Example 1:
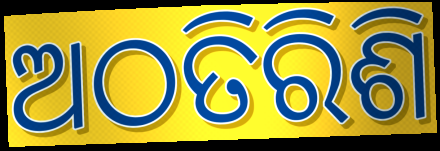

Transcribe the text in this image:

ଅଠତିରିଶି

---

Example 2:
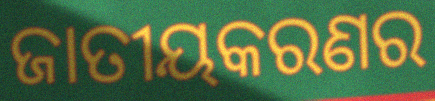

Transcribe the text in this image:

ଜାତୀୟକରଣର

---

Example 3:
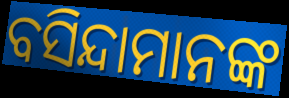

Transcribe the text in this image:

ବସିନ୍ଦାମାନଙ୍କ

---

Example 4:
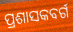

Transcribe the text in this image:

ପ୍ରଶାସକବର୍ଗ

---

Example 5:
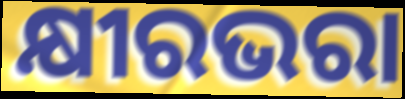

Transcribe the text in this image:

କ୍ଷୀରଭରା